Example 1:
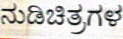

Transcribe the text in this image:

ನುಡಿಚಿತ್ರಗಳ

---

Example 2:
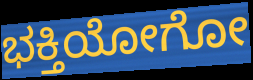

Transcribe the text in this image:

ಭಕ್ತಿಯೋಗೋ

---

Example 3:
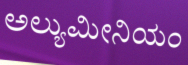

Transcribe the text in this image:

ಅಲ್ಯುಮೀನಿಯಂ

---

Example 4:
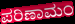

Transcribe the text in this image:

ಪರಿಣಾಮಂ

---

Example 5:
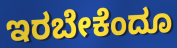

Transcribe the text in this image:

ಇರಬೇಕೆಂದೂ